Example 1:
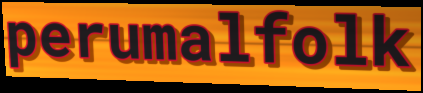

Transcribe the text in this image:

perumalfolk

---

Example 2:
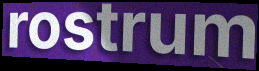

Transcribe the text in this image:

rostrum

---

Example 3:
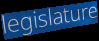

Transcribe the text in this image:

legislature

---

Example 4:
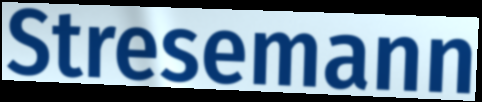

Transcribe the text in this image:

Stresemann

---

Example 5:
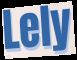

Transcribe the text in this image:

Lely